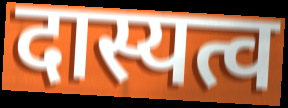
दास्यत्व